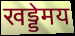
खड्डेमय